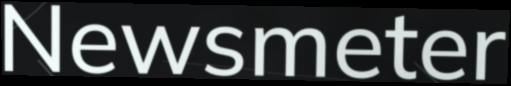
Newsmeter